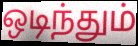
ஒடிந்தும்